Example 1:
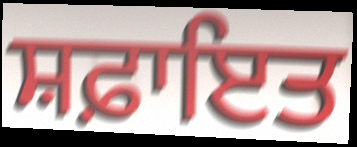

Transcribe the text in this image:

ਸ਼ਫ਼ਾਇਤ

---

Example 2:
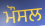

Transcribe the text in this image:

ਮੌਸਲ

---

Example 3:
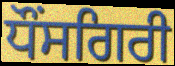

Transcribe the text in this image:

ਧੌਂਸਗਿਰੀ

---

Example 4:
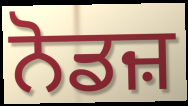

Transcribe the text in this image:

ਨੋਡਜ਼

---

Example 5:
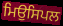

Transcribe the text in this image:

ਮਿਉਸਿਪਲ